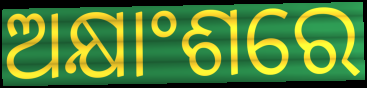
ଅକ୍ଷାଂଶରେ